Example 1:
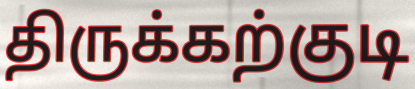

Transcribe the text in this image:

திருக்கற்குடி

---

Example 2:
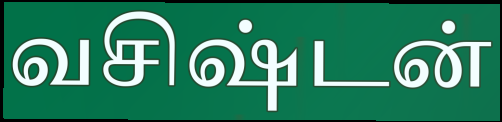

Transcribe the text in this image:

வசிஷ்டன்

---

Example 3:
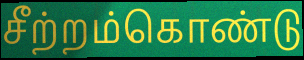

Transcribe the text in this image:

சீற்றம்கொண்டு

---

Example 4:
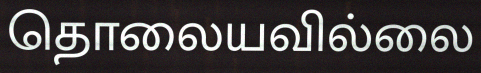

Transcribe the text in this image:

தொலையவில்லை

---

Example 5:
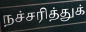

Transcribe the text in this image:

நச்சரித்துக்